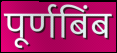
पूर्णबिंब